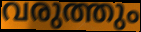
വരുത്തും